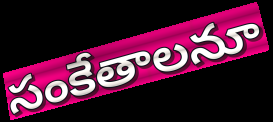
సంకేతాలనూ